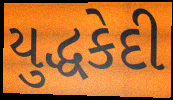
યુદ્ધકેદી